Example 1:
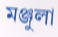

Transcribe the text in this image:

মঞ্জুলা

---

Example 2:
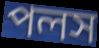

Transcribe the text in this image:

পলস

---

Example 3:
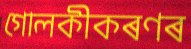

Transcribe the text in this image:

গোলকীকৰণৰ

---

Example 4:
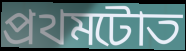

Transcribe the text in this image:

প্ৰথমটোত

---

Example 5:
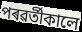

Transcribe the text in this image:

পৰৱৰ্তীকালে